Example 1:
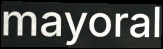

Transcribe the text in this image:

mayoral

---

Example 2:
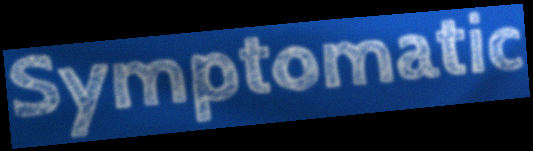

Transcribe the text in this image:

Symptomatic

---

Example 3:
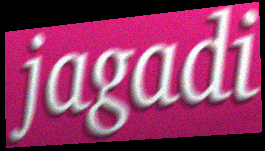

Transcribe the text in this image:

jagadi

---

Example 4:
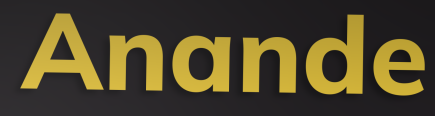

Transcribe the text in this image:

Anande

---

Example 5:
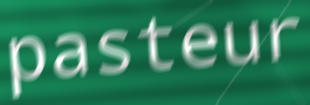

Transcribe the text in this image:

pasteur